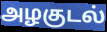
அழகுடல்